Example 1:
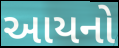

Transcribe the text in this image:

આયનો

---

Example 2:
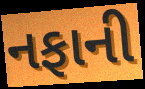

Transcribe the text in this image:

નફાની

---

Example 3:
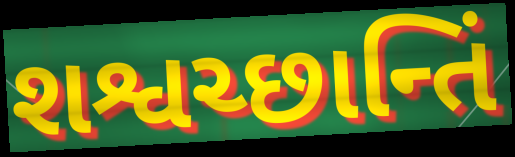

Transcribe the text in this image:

શશ્વચ્છાન્તિં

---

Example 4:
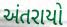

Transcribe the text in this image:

અંતરાયો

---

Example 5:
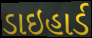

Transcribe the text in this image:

ડાઇહાર્ડ